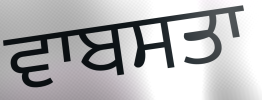
ਵਾਬਸਤਾ